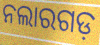
ନଲାରଗଡ଼